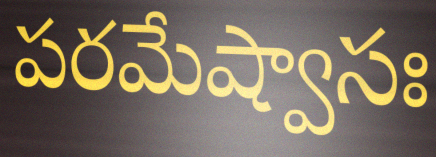
పరమేష్వాసః